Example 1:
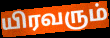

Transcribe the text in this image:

யிரவரும்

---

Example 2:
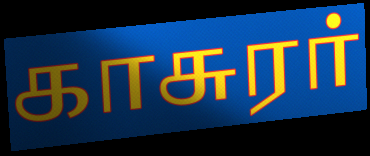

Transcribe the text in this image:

காசுரர்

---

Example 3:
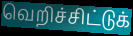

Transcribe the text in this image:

வெறிச்சிட்டுக்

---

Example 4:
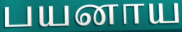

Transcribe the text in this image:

பயனாய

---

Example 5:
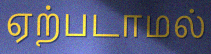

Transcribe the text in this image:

ஏற்படாமல்